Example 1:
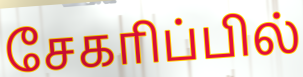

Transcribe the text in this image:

சேகரிப்பில்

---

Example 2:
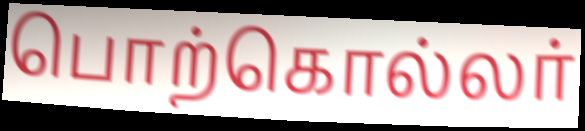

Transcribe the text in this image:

பொற்கொல்லர்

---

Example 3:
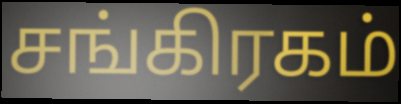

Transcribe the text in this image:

சங்கிரகம்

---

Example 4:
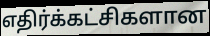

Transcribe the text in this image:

எதிர்க்கட்சிகளான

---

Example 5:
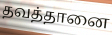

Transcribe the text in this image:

தவத்தானை